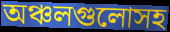
অঞ্চলগুলোসহ